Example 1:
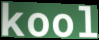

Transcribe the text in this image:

kool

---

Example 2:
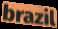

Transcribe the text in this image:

brazil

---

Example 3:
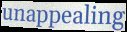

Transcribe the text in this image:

unappealing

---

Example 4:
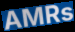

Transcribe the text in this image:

AMRs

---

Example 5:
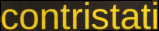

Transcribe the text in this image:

contristati